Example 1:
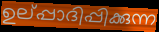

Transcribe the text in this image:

ഉല്പ്പാദിപ്പിക്കുന്ന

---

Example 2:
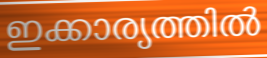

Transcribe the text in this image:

ഇക്കാര്യത്തിൽ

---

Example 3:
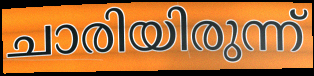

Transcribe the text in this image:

ചാരിയിരുന്ന്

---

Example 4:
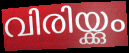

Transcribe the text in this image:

വിരിയ്ക്കും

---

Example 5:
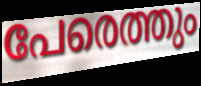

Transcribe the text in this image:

പേരെത്തും